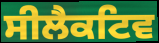
ਸੀਲੈਕਟਿਵ